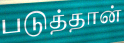
படுத்தான்